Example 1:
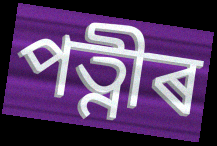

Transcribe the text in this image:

পত্নীৰ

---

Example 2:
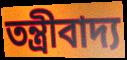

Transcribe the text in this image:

তন্ত্ৰীবাদ্য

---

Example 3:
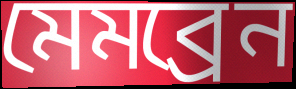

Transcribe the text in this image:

মেমব্ৰেন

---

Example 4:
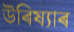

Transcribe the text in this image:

উৰিষ্যাৰ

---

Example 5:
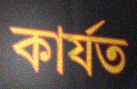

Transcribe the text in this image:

কাৰ্যত